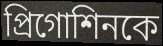
প্রিগোশিনকে